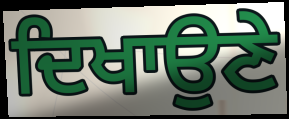
ਦਿਖਾਉਣੇ